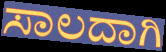
ಸಾಲದಾಗಿ